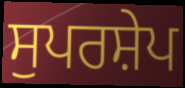
ਸੁਪਰਸ਼ੇਪ